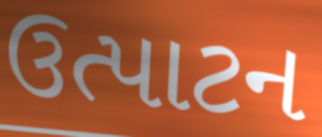
ઉત્પાટન